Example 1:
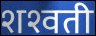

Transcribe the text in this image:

शश्वती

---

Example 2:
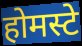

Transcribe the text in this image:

होमस्टे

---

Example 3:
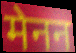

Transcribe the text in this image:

मेनन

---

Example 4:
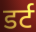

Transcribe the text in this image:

डर्ट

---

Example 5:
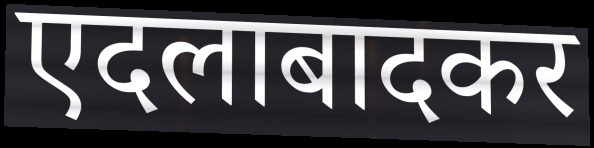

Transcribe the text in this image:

एदलाबादकर